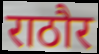
राठौर